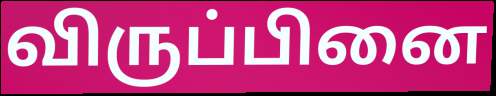
விருப்பினை